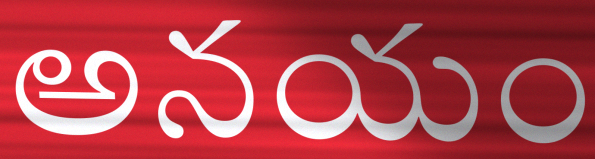
అనయం